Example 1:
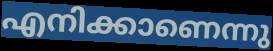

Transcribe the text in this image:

എനിക്കാണെന്നു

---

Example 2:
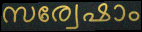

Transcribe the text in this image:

സര്വേഷാം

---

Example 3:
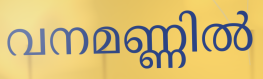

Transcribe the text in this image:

വനമണ്ണിൽ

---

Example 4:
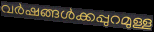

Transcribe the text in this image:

വർഷങ്ങൾക്കപ്പുറമുള്ള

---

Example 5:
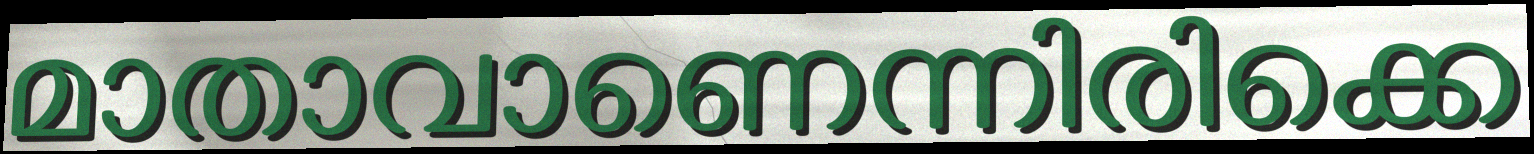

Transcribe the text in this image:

മാതാവാണെന്നിരിക്കെ